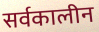
सर्वकालीन